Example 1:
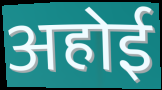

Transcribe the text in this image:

अहोई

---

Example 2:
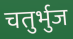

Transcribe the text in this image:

चतुर्भुज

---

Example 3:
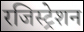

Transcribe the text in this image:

रजिस्ट्रेशन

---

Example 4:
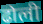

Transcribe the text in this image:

ढोली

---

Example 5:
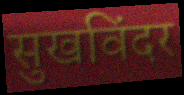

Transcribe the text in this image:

सुखविंदर